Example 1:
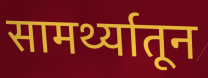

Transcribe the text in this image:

सामर्थ्यातून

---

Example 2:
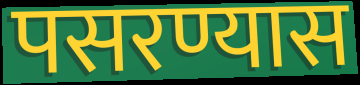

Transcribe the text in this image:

पसरण्यास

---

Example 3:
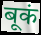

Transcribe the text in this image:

बूकं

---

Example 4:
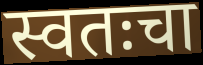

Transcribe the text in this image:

स्वतःचा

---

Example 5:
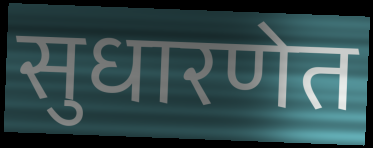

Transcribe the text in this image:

सुधारणेत